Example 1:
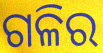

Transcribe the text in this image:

ଗଳିର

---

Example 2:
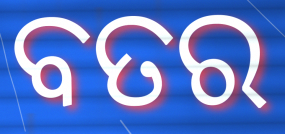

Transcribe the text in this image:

ବତର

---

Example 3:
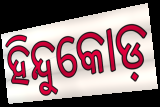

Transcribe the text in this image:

ହିନ୍ଦୁକୋଡ଼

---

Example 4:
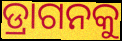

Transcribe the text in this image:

ଡ୍ରାଗନକୁ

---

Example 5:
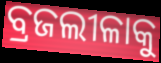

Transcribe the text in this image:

ବ୍ରଜଲୀଳାକୁ